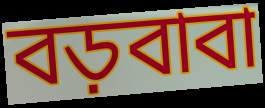
বড়বাবা